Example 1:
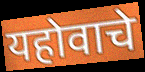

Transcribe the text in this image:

यहोवाचे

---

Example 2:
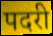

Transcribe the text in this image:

पदरी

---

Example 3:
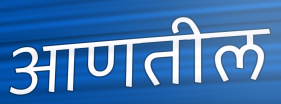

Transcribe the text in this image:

आणतील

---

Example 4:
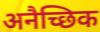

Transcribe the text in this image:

अनैच्छिक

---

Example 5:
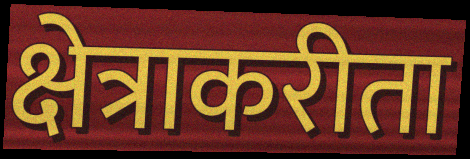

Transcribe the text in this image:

क्षेत्राकरीता